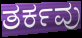
ತರ್ಕವು